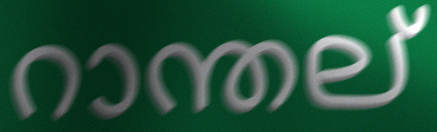
റാന്തല്